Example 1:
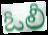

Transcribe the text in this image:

ఓలీ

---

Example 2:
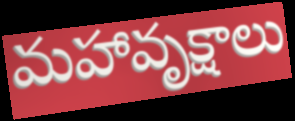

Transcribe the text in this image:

మహావృక్షాలు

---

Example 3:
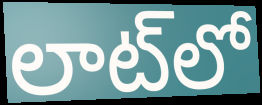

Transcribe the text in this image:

లాట్‌లో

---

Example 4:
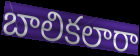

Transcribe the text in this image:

బాలికలారా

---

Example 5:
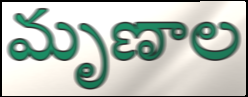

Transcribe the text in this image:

మృణాల